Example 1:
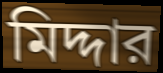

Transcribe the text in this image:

মিদ্দার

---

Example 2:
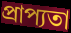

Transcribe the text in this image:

প্রাপ্যতা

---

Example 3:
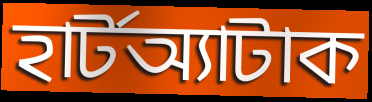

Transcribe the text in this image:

হার্টঅ্যাটাক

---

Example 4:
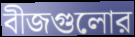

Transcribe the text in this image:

বীজগুলোর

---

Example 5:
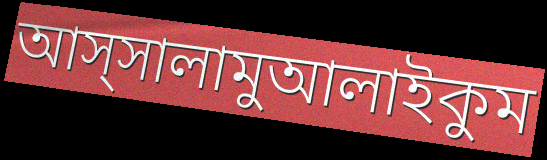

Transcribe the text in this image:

আস্সালামুআলাইকুম